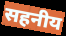
सहनीय